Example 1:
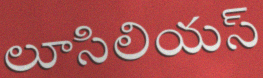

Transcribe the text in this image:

లూసిలియస్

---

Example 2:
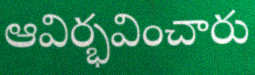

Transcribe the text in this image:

ఆవిర్భవించారు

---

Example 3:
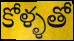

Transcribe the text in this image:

కోళ్ళతో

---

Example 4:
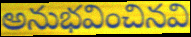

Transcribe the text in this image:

అనుభవించినవి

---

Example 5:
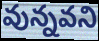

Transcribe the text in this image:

వున్నవని